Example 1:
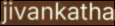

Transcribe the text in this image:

jivankatha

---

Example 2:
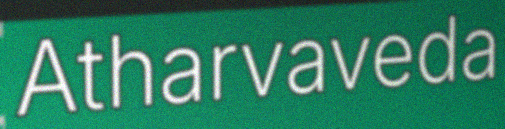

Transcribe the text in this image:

Atharvaveda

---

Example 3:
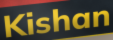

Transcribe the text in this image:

Kishan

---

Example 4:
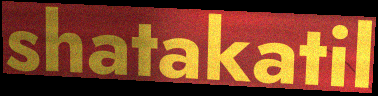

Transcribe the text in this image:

shatakatil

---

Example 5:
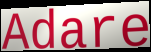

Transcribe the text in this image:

Adare